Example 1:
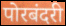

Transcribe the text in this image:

पोरबंदरी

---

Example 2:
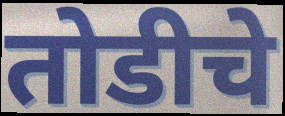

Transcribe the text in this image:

तोडीचे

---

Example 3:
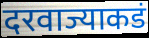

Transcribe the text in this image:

दरवाज्याकडं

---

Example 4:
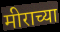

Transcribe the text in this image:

मीराच्या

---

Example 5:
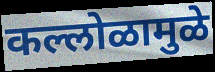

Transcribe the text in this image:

कल्लोळामुळे